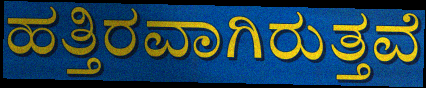
ಹತ್ತಿರವಾಗಿರುತ್ತವೆ